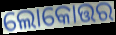
ଲୋକୋତ୍ତର